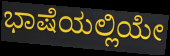
ಭಾಷೆಯಲ್ಲಿಯೇ